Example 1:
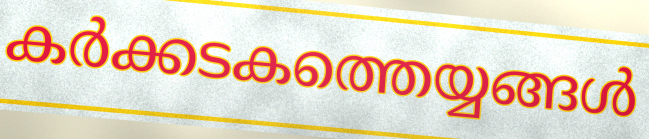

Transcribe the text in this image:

കർക്കടകത്തെയ്യങ്ങൾ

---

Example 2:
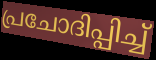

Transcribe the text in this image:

പ്രചോദിപ്പിച്ച്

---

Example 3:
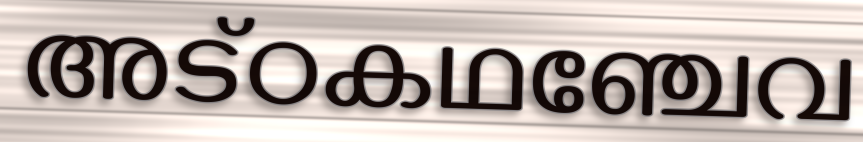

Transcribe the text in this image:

അട്ഠകഥഞ്ചേവ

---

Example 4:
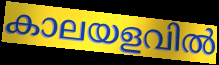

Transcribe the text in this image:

കാലയളവിൽ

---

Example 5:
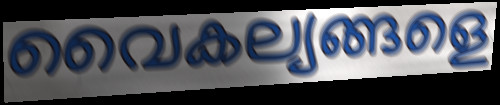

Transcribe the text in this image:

വൈകല്യങ്ങളെ